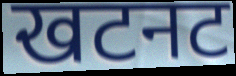
खटनट